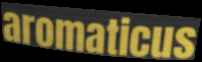
aromaticus